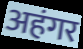
अहंगर